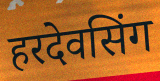
हरदेवसिंग